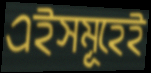
এইসমূহেই